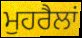
ਮੁਹਰੈਲਾਂ